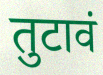
तुटावं